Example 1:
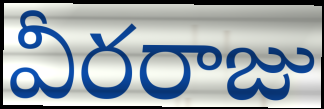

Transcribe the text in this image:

వీరరాజు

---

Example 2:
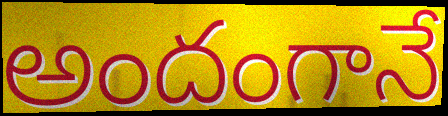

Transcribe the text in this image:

అందంగానే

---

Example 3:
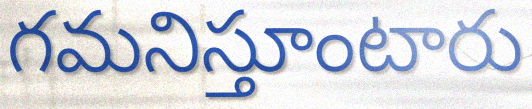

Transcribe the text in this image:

గమనిస్తూంటారు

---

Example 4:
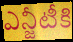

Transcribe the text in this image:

ఎన్జీటీకి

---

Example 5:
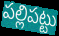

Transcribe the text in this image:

పల్లిపట్టు